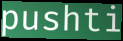
pushti